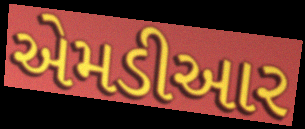
એમડીઆર